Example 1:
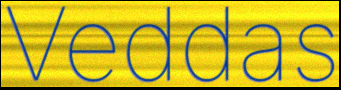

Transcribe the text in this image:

Veddas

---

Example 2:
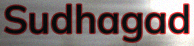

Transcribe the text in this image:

Sudhagad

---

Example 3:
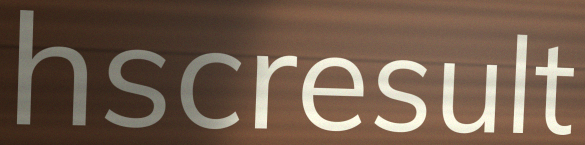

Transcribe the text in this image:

hscresult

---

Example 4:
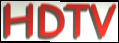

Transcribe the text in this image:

HDTV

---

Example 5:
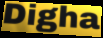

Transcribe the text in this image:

Digha